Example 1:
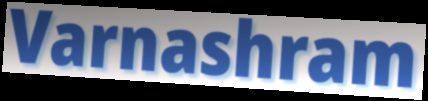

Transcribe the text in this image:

Varnashram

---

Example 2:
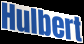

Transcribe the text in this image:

Hulbert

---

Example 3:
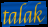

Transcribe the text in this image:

talak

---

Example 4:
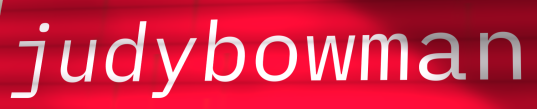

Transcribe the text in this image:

judybowman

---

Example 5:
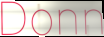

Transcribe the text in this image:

Donn